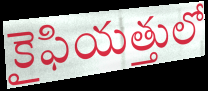
కైఫియత్తులో